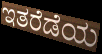
ಇತರೆಡೆಯ